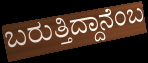
ಬರುತ್ತಿದ್ದಾನೆಂಬ